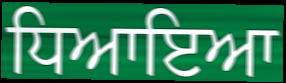
ਧਿਆਇਆ